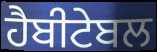
ਹੈਬੀਟੇਬਲ